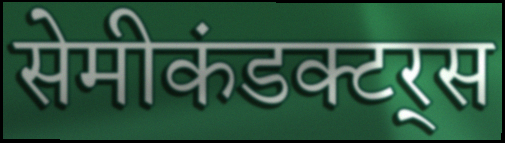
सेमीकंडक्टर्स